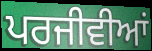
ਪਰਜੀਵੀਆਂ